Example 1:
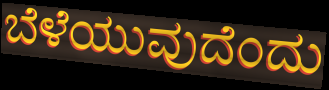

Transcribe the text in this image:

ಬೆಳೆಯುವುದೆಂದು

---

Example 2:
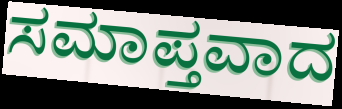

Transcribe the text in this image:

ಸಮಾಪ್ತವಾದ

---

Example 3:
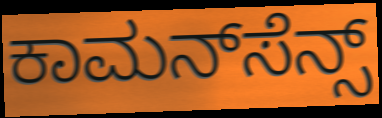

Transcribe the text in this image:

ಕಾಮನ್‌ಸೆನ್ಸ್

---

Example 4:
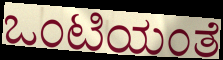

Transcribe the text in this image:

ಒಂಟಿಯಂತೆ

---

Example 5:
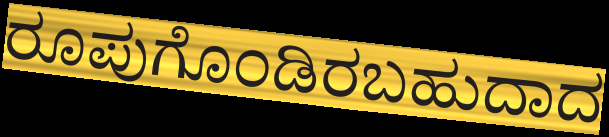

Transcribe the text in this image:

ರೂಪುಗೊಂಡಿರಬಹುದಾದ